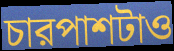
চারপাশটাও